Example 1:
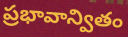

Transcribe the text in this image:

ప్రభావాన్వితం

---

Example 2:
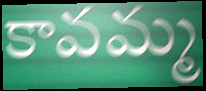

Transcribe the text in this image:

కావమ్మ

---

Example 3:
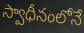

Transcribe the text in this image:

స్వాధీనంలోనే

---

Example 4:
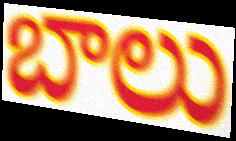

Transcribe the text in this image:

బాలు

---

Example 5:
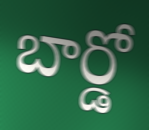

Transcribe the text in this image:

బార్డో